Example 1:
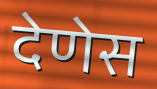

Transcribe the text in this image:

देणेस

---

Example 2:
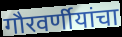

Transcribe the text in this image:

गौरवर्णीयांचा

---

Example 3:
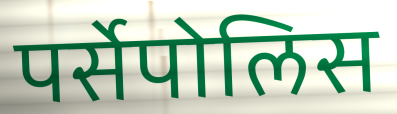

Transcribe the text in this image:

पर्सेपोलिस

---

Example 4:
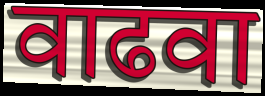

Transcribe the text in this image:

वाढवा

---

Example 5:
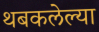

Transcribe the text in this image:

थबकलेल्या